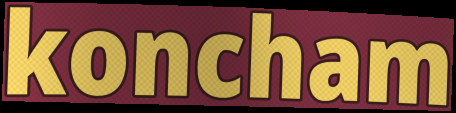
koncham